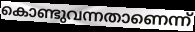
കൊണ്ടുവന്നതാണെന്ന്